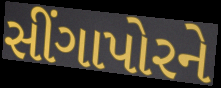
સીંગાપોરને